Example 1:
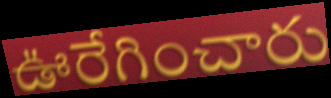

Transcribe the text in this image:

ఊరేగించారు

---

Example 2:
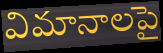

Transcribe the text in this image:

విమానాలపై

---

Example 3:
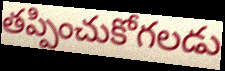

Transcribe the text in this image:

తప్పించుకోగలడు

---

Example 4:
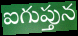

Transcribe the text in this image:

ఐగుప్తున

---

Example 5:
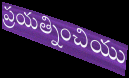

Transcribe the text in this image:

ప్రయత్నించియు